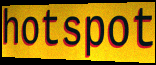
hotspot